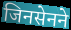
जिनसेनने